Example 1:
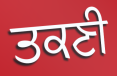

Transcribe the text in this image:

ਤਕਣੀ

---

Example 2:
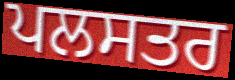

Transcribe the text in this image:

ਪਲਸਤਰ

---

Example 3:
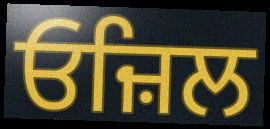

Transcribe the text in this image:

ਓਜ਼ਿਲ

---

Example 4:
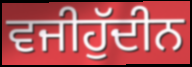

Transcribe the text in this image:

ਵਜੀਹੁੱਦੀਨ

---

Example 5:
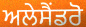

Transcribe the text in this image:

ਅਲੇਸੈਂਡਰੋ